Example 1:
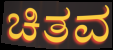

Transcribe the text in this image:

ಚಿತವ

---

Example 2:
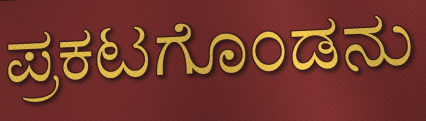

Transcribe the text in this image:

ಪ್ರಕಟಗೊಂಡನು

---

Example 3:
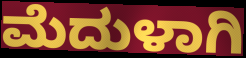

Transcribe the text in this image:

ಮೆದುಳಾಗಿ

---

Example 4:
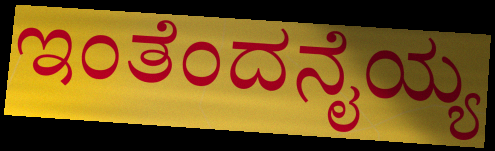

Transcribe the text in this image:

ಇಂತೆಂದನೈಯ್ಯ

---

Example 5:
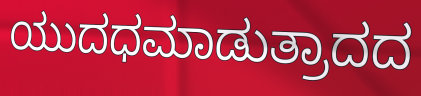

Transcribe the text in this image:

ಯುದಧಮಾಡುತ್ರಾದದ